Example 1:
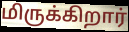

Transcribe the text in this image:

மிருக்கிறார்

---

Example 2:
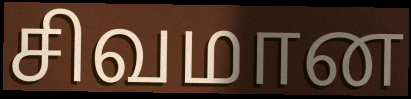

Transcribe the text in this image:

சிவமான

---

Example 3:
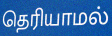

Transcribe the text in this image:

தெரியாமல்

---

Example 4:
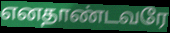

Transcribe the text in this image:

எனதாண்டவரே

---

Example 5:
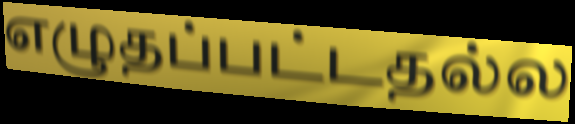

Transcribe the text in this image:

எழுதப்பட்டதல்ல